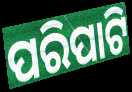
ପରିପାଟି